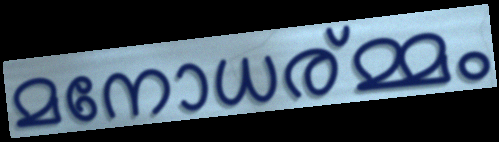
മനോധര്മ്മം